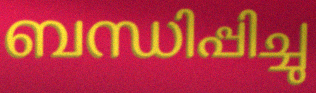
ബന്ധിപ്പിച്ചു